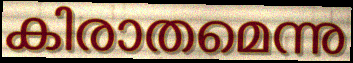
കിരാതമെന്നു